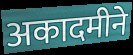
अकादमीने